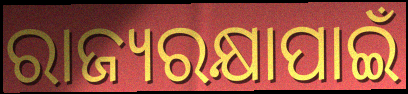
ରାଜ୍ୟରକ୍ଷାପାଇଁ